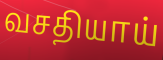
வசதியாய்